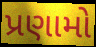
પ્રણામો